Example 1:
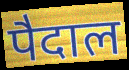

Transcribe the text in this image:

पैदाल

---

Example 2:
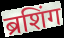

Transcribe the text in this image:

ब्रशिंग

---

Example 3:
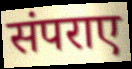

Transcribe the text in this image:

संपराए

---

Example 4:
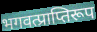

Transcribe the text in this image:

भगवत्प्राप्तिरूप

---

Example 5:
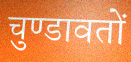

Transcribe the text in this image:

चुण्डावतों